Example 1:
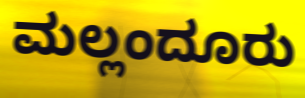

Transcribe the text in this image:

ಮಲ್ಲಂದೂರು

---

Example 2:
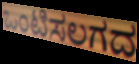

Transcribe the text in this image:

ಒಂಟಿಸಲಗದ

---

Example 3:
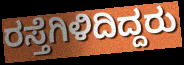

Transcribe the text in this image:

ರಸ್ತೆಗಿಳಿದಿದ್ದರು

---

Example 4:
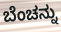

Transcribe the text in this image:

ಬೆಂಚನ್ನು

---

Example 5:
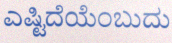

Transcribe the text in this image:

ಎಷ್ಟಿದೆಯೆಂಬುದು